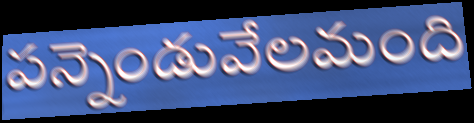
పన్నెండువేలమంది